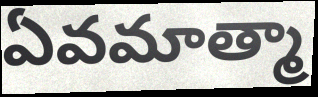
ఏవమాత్మా